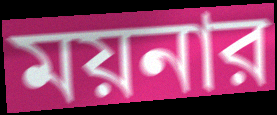
ময়নার